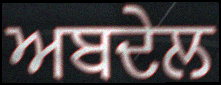
ਅਬਦੇਲ